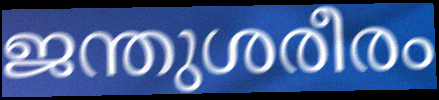
ജന്തുശരീരം